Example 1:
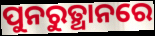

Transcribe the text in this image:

ପୁନରୁତ୍ଥାନରେ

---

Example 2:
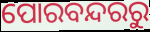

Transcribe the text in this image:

ପୋରବନ୍ଦରରୁ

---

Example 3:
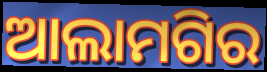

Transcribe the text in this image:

ଆଲାମଗିର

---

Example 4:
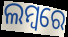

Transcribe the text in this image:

ଲମ୍ବରେ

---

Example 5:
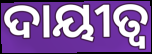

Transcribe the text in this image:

ଦାୟୀତ୍ୱ